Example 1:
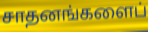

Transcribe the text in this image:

சாதனங்களைப்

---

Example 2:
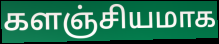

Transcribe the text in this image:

களஞ்சியமாக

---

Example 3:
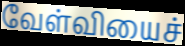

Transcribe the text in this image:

வேள்வியைச்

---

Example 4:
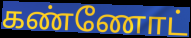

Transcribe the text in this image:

கண்ணோட்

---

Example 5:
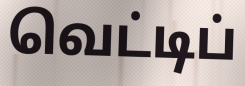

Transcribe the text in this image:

வெட்டிப்